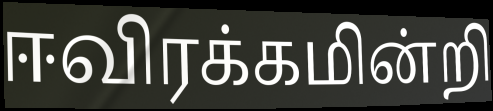
ஈவிரக்கமின்றி